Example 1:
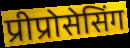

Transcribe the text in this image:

प्रीप्रोसेसिंग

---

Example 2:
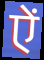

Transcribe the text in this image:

ऐं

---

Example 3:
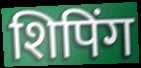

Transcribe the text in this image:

शिपिंग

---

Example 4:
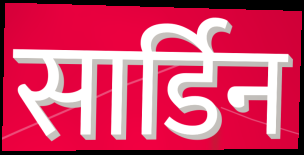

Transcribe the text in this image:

सार्डिन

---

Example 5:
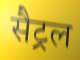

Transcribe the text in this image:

सैट्रल